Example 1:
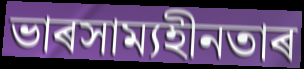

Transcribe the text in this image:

ভাৰসাম্যহীনতাৰ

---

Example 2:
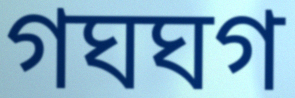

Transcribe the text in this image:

গঘঘগ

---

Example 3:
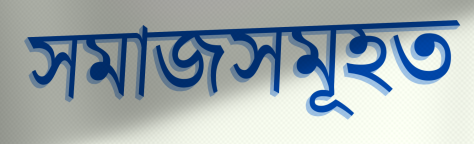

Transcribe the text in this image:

সমাজসমূহত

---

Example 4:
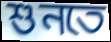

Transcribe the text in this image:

শুনতে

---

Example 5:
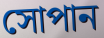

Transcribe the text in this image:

সোপান